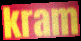
kram